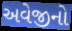
અવેજીનો